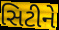
સિટીને